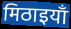
मिठाइयाँ